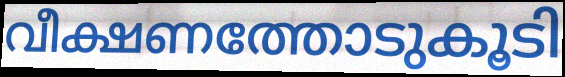
വീക്ഷണത്തോടുകൂടി